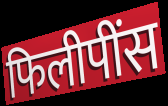
फिलीपींस